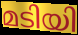
മടിയി